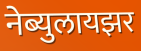
नेब्युलायझर